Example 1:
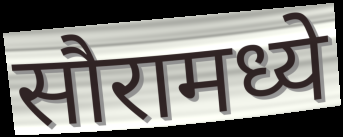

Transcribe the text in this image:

सौरामध्ये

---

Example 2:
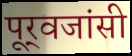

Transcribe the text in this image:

पूर्वजांसी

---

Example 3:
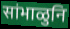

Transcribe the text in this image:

सांभाळुनि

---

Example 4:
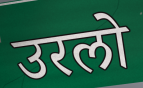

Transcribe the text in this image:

उरलो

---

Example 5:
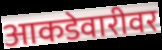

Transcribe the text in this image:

आकडेवारीवर